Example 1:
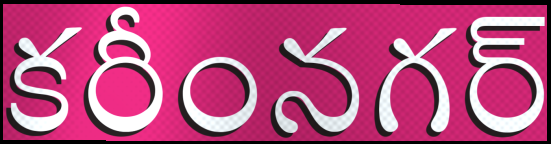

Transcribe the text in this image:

కరీంనగర్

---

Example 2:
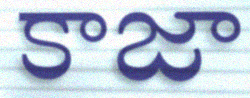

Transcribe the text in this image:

కాజా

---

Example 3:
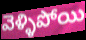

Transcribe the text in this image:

వెళ్ళిపోయి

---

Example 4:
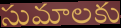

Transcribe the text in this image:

సుమాలకు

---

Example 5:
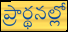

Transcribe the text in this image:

ప్రార్థనల్లో